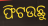
ଫିଟଉଛୁ